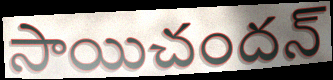
సాయిచందన్